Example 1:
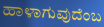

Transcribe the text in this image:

ಹಾಳಾಗುವುದೆಂಬ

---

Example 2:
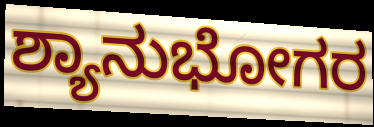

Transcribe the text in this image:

ಶ್ಯಾನುಭೋಗರ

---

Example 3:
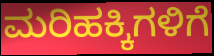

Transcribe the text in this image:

ಮರಿಹಕ್ಕಿಗಳಿಗೆ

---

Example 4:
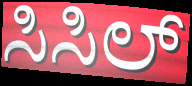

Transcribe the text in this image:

ಸಿಸಿಲ್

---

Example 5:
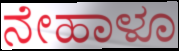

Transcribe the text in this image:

ನೇಹಾಳೂ